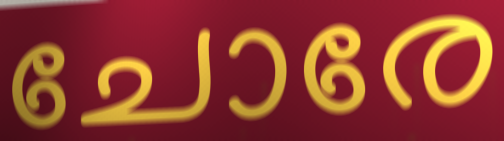
ചോരേ